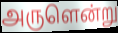
அருளென்று